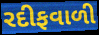
રદીફવાળી